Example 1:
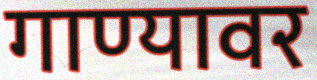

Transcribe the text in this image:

गाण्यावर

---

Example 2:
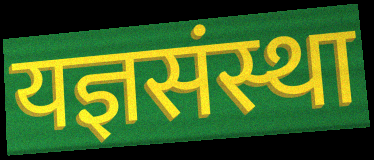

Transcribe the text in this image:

यज्ञसंस्था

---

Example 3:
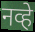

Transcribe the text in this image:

नव्हे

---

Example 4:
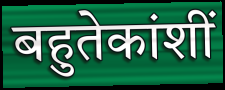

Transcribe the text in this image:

बहुतेकांशीं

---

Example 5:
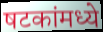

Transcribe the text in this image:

षटकांमध्ये